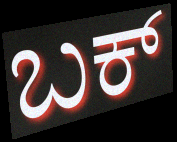
ಬಕ್